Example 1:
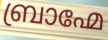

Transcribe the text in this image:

ബ്രാഹ്മേ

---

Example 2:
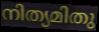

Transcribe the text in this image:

നിത്യമിതു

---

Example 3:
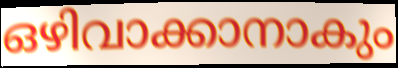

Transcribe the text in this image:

ഒഴിവാക്കാനാകും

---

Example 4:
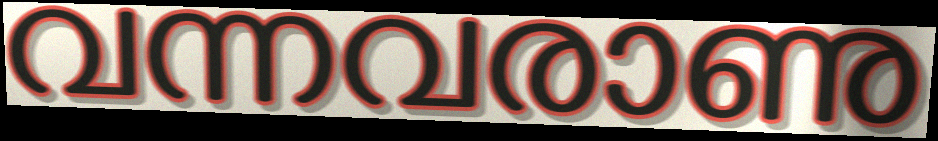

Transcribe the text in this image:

വന്നവരാണു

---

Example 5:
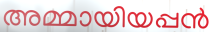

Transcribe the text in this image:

അമ്മായിയപ്പൻ